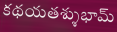
కథయతశ్శుభామ్